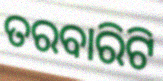
ତରବାରିଟି